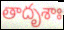
తాదృశాః